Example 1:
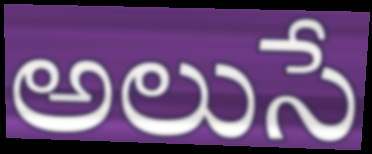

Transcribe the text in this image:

అలుసే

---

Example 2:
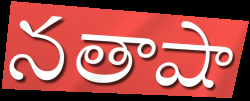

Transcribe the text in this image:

నతాషా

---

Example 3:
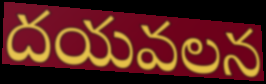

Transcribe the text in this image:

దయవలన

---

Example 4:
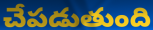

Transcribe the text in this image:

చేపడుతుంది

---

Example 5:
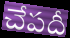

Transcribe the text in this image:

చేపదీ